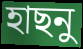
হাছনু